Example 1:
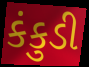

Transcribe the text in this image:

કંકુડી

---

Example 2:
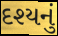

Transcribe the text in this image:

દશ્યનું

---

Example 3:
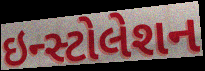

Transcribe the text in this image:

ઇન્સ્ટોલેશન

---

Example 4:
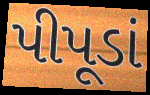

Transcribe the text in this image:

પીપૂડાં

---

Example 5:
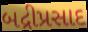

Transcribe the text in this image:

બદ્રીપ્રસાદ